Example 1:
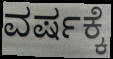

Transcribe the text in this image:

ವರ್ಷಕ್ಕೆ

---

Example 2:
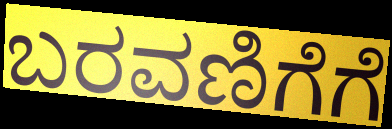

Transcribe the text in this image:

ಬರವಣಿಗೆಗೆ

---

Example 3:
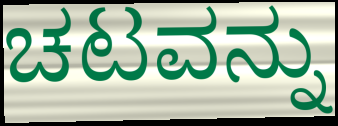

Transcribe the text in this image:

ಚಟವನ್ನು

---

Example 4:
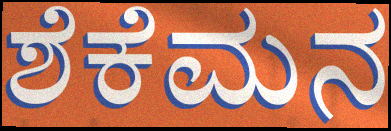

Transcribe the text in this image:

ಶೆಕೆಮನ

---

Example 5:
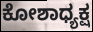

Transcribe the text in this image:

ಕೋಶಾಧ್ಯಕ್ಷ